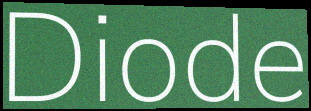
Diode